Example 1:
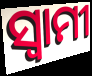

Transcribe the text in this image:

ସ୍ବାମୀ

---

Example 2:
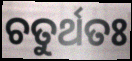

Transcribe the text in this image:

ଚତୁର୍ଥତଃ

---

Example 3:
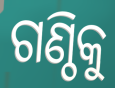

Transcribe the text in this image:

ଗଣ୍ଠିକୁ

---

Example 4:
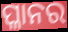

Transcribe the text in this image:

ପ୍ଳାନର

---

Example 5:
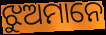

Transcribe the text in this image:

ଝୁଅମାନେ